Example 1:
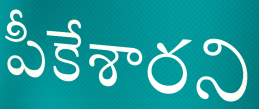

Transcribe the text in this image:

పీకేశారని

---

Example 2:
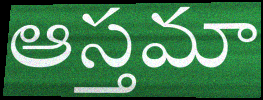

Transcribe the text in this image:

ఆస్తమా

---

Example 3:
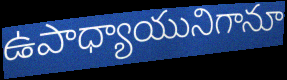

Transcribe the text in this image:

ఉపాధ్యాయునిగానూ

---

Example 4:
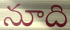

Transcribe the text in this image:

నూది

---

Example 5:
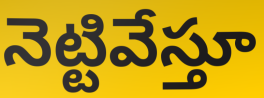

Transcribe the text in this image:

నెట్టివేస్తూ